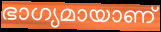
ഭാഗ്യമായാണ്